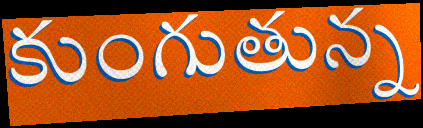
కుంగుతున్న